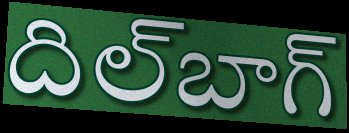
దిల్‌బాగ్